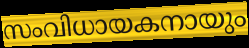
സംവിധായകനായും